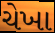
ચેખા